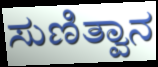
ಸುಣಿತ್ವಾನ